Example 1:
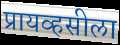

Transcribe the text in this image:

प्रायव्हसीला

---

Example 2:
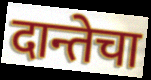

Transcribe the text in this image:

दान्तेचा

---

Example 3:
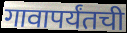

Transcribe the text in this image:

गावापर्यंतची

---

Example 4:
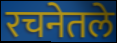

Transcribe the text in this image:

रचनेतले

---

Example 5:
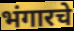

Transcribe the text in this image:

भंगारचे